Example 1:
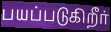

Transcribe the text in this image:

பயப்படுகிறீர்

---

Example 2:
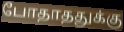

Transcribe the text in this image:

போதாததுக்கு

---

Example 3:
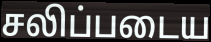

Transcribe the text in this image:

சலிப்படைய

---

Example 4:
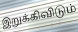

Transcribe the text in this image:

இறுக்கிவிடும்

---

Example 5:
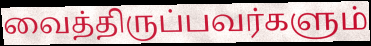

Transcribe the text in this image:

வைத்திருப்பவர்களும்